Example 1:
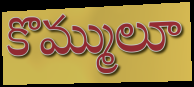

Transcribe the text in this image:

కొమ్ములూ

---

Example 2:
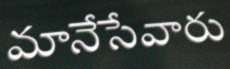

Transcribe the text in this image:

మానేసేవారు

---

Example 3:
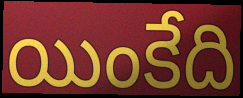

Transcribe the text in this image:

యింకేది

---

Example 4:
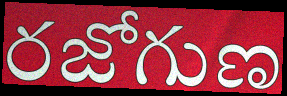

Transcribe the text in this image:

రజోగుణ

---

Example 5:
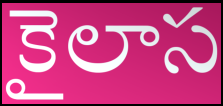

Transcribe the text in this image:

కైలాస